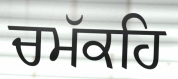
ਚਮੱਕਹਿ